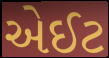
એઈટ